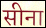
सीना